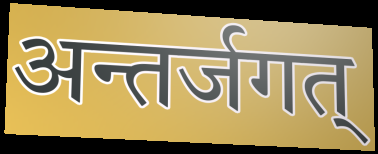
अन्तर्जगत्